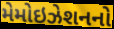
મેમોઇઝેશનનો